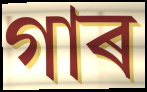
গাৰ